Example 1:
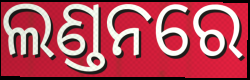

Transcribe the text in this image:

ଲଣ୍ଡନରେ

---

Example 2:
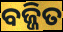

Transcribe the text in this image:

ବଜ୍ଜିତ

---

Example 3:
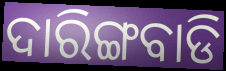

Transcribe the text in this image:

ଦାରିଙ୍ଗବାଡି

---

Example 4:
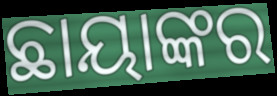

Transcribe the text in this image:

ଛାୟାଙ୍କର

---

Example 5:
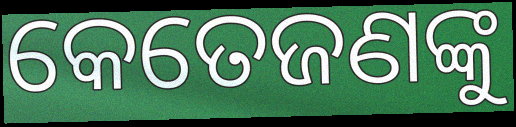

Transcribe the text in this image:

କେତେଜଣଙ୍କୁ